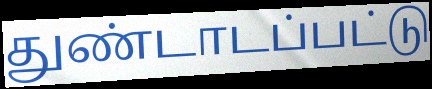
துண்டாடப்பட்டு